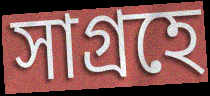
সাগ্রহে